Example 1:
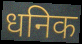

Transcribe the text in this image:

धनिक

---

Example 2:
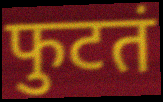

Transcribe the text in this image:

फुटतं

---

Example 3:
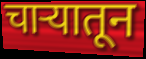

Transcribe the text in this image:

चाऱ्यातून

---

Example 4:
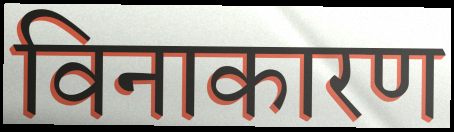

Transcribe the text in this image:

विनाकारण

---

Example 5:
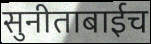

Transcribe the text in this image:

सुनीताबाईच